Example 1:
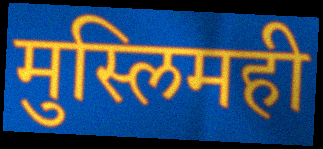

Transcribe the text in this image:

मुस्लिमही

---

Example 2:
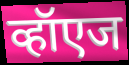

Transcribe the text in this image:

व्हॉएज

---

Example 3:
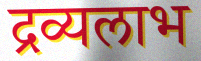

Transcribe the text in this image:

द्रव्यलाभ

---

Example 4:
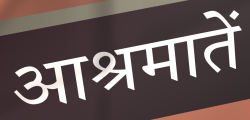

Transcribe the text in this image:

आश्रमातें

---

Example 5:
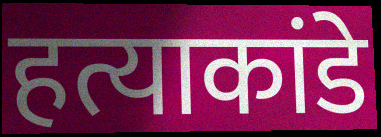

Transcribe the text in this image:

हत्याकांडे